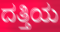
ದತ್ತಿಯ